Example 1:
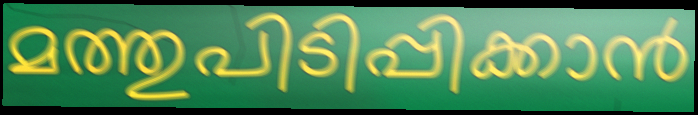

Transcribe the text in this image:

മത്തുപിടിപ്പിക്കാൻ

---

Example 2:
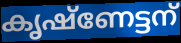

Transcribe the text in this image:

കൃഷ്ണേട്ടന്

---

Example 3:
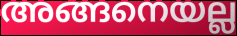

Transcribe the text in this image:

അങ്ങനെയല്ല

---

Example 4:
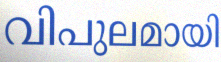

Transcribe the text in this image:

വിപുലമായി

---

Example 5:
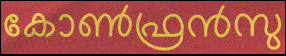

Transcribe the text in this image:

കോൺഫ്രൻസു